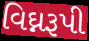
વિઘ્નરૂપી